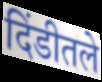
दिंडीतले